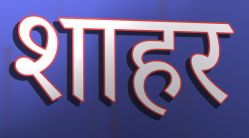
शाहर